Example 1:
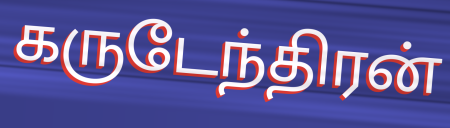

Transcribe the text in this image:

கருடேந்திரன்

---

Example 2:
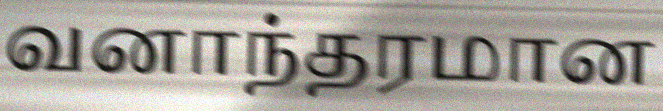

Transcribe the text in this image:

வனாந்தரமான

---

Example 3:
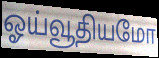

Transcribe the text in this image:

ஓய்வூதியமோ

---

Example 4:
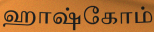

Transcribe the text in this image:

ஹாஷ்கோம்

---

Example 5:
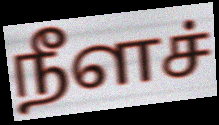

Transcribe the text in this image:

நீளச்